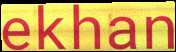
ekhan